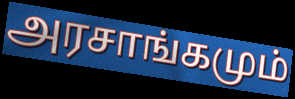
அரசாங்கமும்